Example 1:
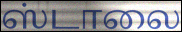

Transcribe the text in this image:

ஸ்டாலை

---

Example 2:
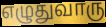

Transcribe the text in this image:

எழுதுவாரு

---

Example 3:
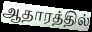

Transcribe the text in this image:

ஆதாரத்தில்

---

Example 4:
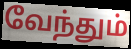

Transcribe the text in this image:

வேந்தும்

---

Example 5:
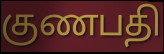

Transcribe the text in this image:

குணபதி